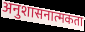
अनुशासनात्मकता